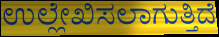
ಉಲ್ಲೇಖಿಸಲಾಗುತ್ತಿದೆ